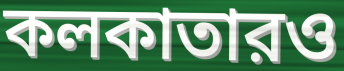
কলকাতারও